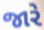
જારે